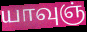
யாவுஞ்